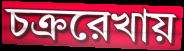
চক্ররেখায়